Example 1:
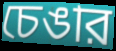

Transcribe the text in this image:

চেঙার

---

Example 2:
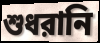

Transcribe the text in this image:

শুধরানি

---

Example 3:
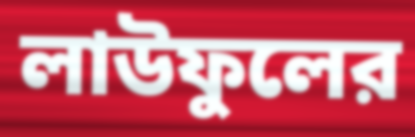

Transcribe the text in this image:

লাউফুলের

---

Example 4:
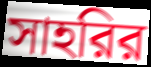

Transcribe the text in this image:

সাহরির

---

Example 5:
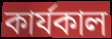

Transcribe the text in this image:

কার্যকাল